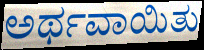
ಅರ್ಥವಾಯಿತು